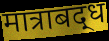
मात्राबद्ध